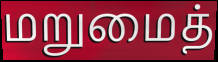
மறுமைத்